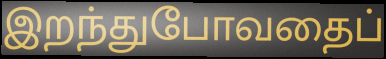
இறந்துபோவதைப்